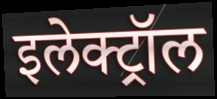
इलेक्ट्रॉल